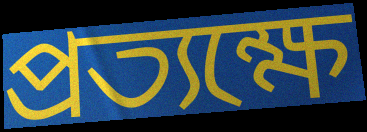
প্রত্যক্ষে